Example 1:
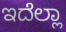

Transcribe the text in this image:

ಇದೆಲ್ಲಾ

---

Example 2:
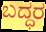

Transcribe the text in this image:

ಬದ್ಧರ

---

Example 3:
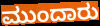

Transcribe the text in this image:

ಮುಂದಾರು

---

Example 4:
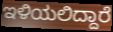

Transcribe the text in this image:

ಇಳಿಯಲಿದ್ದಾರೆ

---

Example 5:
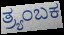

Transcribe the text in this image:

ತ್ರ್ಯಂಬಕ